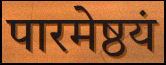
पारमेष्ठयं